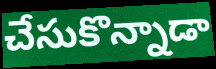
చేసుకొన్నాడా